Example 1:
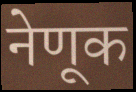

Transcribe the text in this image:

नेणूक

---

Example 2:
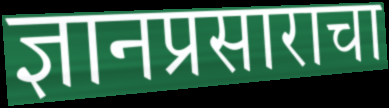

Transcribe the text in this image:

ज्ञानप्रसाराचा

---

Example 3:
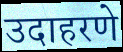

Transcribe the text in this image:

उदाहरणे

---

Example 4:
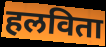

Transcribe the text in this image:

हलविता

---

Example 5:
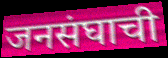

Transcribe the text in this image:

जनसंघाची